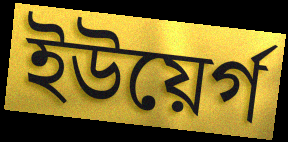
ইউয়ের্গ